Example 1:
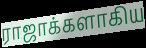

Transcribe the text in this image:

ராஜாக்களாகிய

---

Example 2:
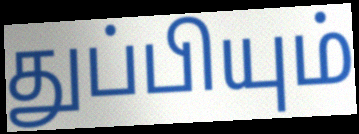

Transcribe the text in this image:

துப்பியும்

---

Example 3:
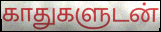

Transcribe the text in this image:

காதுகளுடன்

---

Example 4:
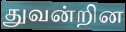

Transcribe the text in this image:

துவன்றின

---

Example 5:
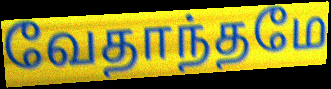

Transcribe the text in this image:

வேதாந்தமே